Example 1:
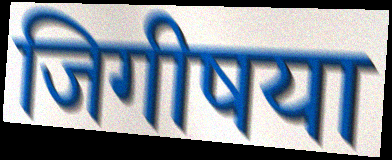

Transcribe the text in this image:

जिगीषया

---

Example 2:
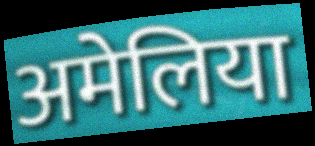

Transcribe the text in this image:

अमेलिया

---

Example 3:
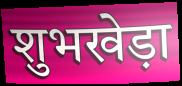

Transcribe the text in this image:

शुभखेड़ा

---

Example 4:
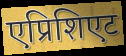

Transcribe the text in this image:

एप्रिशिएट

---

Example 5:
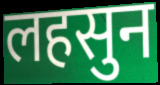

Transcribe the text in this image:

लहसुन